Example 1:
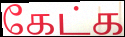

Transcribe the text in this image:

கேட்க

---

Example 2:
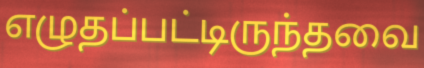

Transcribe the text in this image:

எழுதப்பட்டிருந்தவை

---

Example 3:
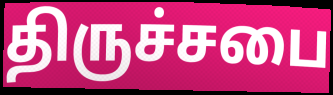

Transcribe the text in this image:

திருச்சபை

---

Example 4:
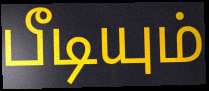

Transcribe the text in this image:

பீடியும்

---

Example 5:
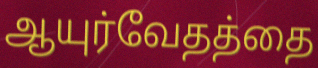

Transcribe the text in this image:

ஆயுர்வேதத்தை